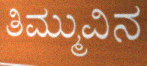
ತಿಮ್ಮುವಿನ